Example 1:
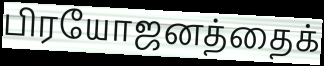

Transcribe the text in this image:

பிரயோஜனத்தைக்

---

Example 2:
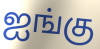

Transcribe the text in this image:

ஐங்கு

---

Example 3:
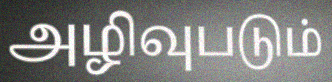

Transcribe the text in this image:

அழிவுபடும்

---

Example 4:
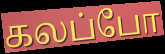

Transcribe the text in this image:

கலப்போ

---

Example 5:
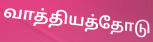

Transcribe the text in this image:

வாத்தியத்தோடு